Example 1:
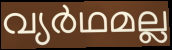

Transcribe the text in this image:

വ്യർഥമല്ല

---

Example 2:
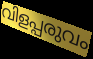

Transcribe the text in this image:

വിളപ്പരുവം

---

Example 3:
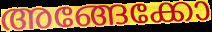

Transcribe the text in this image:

അങ്ങേക്കോ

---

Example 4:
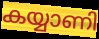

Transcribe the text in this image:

കയ്യാണി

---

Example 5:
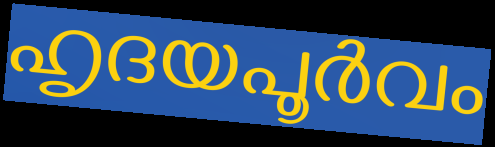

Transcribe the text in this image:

ഹൃദയപൂർവം